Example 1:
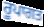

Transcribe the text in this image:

ਰੂਪਾਗਤ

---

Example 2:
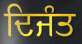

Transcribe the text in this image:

ਦਿਜੰਤ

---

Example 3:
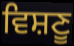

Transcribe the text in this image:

ਵਿਸ਼ਣੂ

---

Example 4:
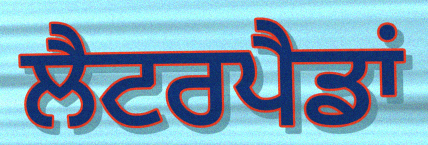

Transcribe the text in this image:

ਲੈਟਰਪੈਡਾਂ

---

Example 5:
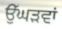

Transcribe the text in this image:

ਉੱਘੜਵਾਂ